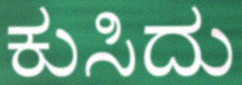
ಕುಸಿದು